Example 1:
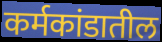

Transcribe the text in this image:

कर्मकांडातील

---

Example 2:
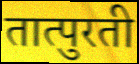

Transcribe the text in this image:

तात्पुरती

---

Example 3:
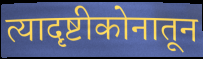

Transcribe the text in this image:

त्यादृष्टीकोनातून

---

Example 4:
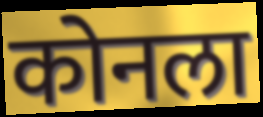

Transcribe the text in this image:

कोनला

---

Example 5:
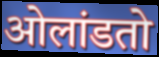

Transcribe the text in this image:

ओलांडतो